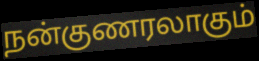
நன்குணரலாகும்